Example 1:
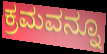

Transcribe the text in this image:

ಕ್ರಮವನ್ನೂ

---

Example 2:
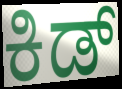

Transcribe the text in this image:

ಕಿಡ್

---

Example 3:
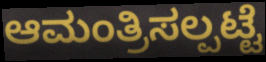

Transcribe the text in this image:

ಆಮಂತ್ರಿಸಲ್ಪಟ್ಟೆ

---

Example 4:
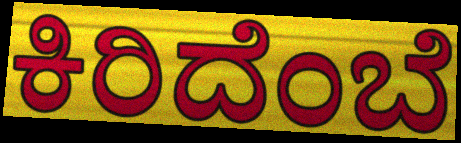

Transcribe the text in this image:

ಕಿರಿದೆಂಬೆ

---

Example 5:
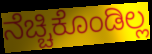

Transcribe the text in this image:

ನೆಚ್ಚಿಕೊಂಡಿಲ್ಲ